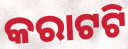
କରାଟଟି